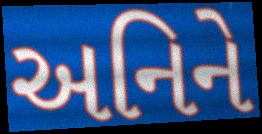
અનિને